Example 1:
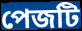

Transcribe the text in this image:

পেজটি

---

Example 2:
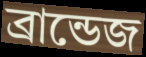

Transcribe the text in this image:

ব্রান্ডেজ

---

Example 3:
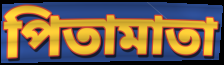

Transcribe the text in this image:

পিতামাতা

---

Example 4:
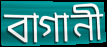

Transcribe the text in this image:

বাগানী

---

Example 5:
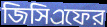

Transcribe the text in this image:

জিসিএফের